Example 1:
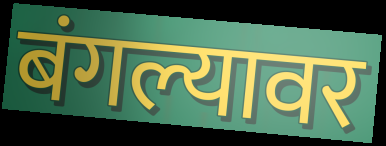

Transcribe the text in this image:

बंगल्यावर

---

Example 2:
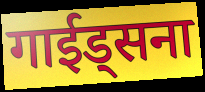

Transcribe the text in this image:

गाईड्सना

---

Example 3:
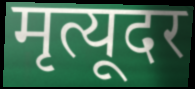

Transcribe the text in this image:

मृत्यूदर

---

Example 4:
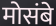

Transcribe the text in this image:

मोसंबे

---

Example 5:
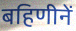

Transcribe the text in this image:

बहिणीनें